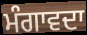
ਮੰਗਾਵਦਾ